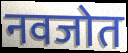
नवजोत